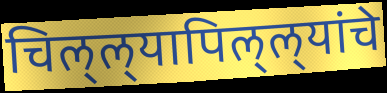
चिल्ल्यापिल्ल्यांचे